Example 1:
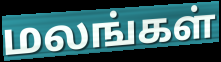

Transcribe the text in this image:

மலங்கள்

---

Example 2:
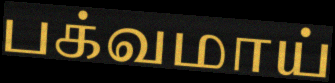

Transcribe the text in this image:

பக்வமாய்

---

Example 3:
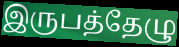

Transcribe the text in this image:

இருபத்தேழு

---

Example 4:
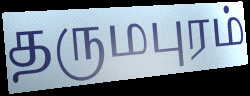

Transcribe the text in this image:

தருமபுரம்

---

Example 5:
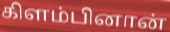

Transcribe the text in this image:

கிளம்பினான்